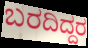
ಬರದಿದ್ದರ